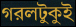
গরলটুকুই